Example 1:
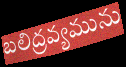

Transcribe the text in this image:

బలిద్రవ్యమును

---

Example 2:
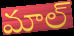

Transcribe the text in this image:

మాల్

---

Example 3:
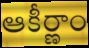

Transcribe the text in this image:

ఆకీర్ణాం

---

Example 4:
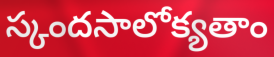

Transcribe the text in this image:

స్కందసాలోక్యతాం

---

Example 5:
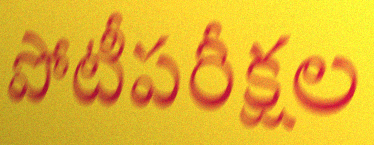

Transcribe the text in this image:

పోటీపరీక్షల